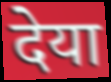
देया